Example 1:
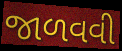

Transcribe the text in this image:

જાળવવી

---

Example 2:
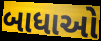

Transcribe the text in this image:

બાધાઓ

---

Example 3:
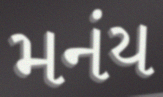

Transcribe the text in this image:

મનંય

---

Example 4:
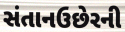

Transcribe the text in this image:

સંતાનઉછેરની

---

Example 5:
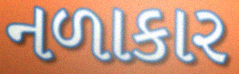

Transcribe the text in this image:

નળાકાર